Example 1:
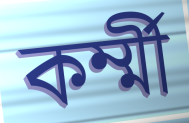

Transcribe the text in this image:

কর্ম্মী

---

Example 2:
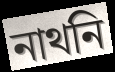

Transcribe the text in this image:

নাথনি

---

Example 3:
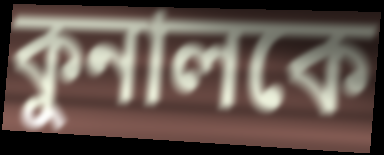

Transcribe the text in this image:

কুনালকে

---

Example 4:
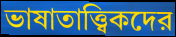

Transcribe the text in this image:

ভাষাতাত্ত্বিকদের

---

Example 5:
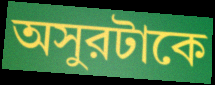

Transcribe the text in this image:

অসুরটাকে